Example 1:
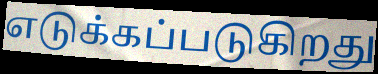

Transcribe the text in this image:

எடுக்கப்படுகிறது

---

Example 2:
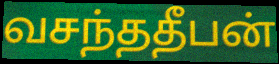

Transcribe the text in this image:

வசந்ததீபன்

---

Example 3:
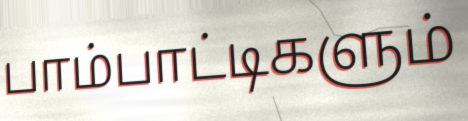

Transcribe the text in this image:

பாம்பாட்டிகளும்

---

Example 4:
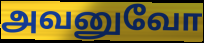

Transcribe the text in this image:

அவனுவோ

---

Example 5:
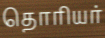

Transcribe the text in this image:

தொரியர்